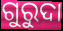
ଗୁରୁଦା